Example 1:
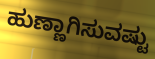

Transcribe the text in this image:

ಹುಣ್ಣಾಗಿಸುವಷ್ಟು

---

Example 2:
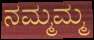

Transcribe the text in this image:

ನಮ್ಮಮ್ಮ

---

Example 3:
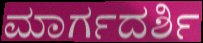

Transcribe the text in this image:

ಮಾರ್ಗದರ್ಶಿ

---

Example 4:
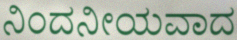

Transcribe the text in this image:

ನಿಂದನೀಯವಾದ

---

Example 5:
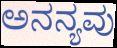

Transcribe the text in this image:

ಅನನ್ಯವು